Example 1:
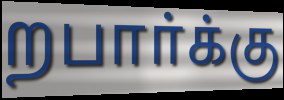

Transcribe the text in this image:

றபார்க்கு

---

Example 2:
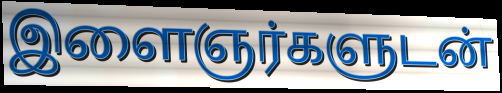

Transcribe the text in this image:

இளைஞர்களுடன்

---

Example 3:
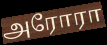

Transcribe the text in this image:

அரோரா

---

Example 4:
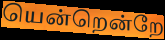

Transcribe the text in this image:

யென்றென்றே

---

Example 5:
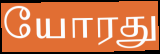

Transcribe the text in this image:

யோரது